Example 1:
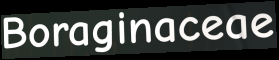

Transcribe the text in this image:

Boraginaceae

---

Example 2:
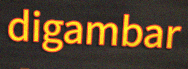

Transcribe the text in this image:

digambar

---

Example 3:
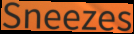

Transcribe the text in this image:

Sneezes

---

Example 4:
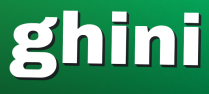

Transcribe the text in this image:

ghini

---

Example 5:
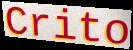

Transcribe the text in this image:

Crito